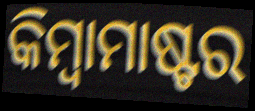
କିମ୍ୱାମାଷ୍ଟର